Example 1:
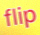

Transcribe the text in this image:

flip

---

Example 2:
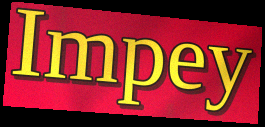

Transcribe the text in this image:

Impey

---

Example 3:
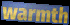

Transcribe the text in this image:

warmth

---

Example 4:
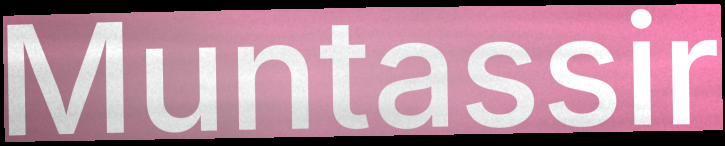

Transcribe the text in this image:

Muntassir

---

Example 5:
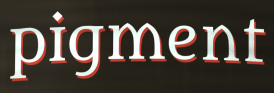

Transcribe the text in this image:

pigment